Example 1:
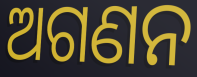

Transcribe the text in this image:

ଅଗଣନ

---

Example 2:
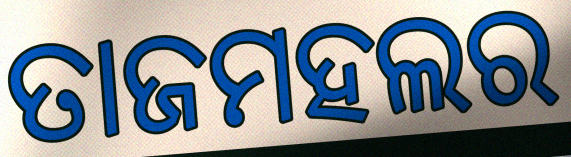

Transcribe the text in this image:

ତାଜମହଲର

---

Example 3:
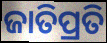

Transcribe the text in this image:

ଜାତିପ୍ରତି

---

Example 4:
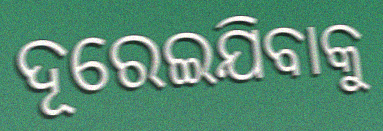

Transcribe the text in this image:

ଦୂରେଇଯିବାକୁ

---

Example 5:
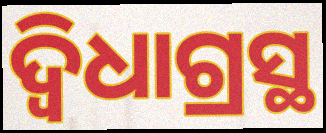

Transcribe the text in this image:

ଦ୍ବିଧାଗ୍ରସ୍ଥ